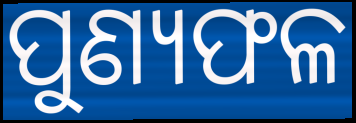
ପୁଣ୍ୟଫଳ